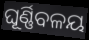
ଘୂର୍ଣ୍ଣିବଳୟ